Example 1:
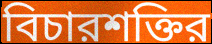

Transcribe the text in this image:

বিচারশক্তির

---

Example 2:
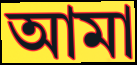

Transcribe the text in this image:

আমা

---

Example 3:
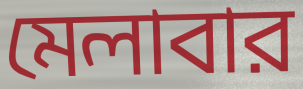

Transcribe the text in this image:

মেলাবার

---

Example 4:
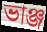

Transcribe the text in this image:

ভাঞ্জ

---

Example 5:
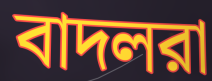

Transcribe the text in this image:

বাদলরা